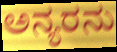
ಅನ್ಯರನು